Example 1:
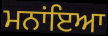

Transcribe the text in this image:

ਮਨਾਂਇਆ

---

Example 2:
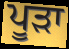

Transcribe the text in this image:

ਪੂੜਾ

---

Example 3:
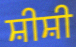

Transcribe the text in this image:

ਸ਼ੀਸ਼ੀ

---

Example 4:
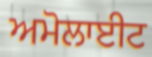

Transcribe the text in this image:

ਅਮੋਲਾਈਟ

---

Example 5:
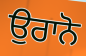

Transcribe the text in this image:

ਉਰਾਨੋ